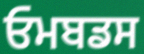
ਓਮਬਡਸ